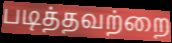
படித்தவற்றை